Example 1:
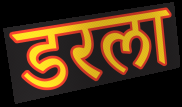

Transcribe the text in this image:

डरला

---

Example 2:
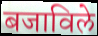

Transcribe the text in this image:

बजाविले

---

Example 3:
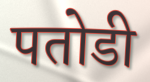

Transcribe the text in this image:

पतोडी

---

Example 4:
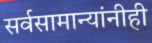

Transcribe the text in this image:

सर्वसामान्यांनीही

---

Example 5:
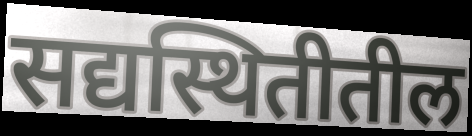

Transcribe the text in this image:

सद्यस्थितीतील